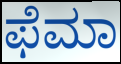
ಫೆಮಾ